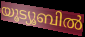
യൂട്യൂബിൽ